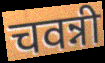
चवन्नी